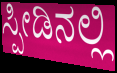
ಸ್ಪೀಡಿನಲ್ಲಿ